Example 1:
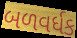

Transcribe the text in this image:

બળવર્ધક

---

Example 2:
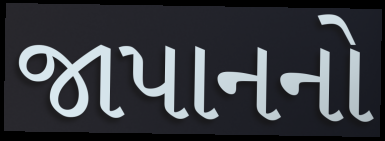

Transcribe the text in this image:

જાપાનનો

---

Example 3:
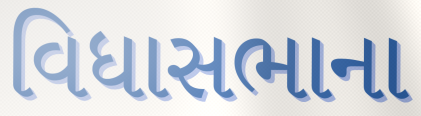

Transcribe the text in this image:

વિધાસભાના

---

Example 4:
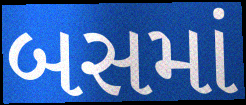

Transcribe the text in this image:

બસમાં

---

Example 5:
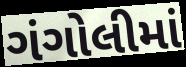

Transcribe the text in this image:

ગંગોલીમાં